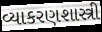
વ્યાકરણશાસ્ત્રી